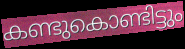
കണ്ടുകൊണ്ടിട്ടും